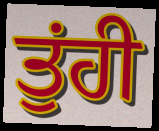
ਤੁਂਹੀ